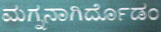
ಮಗ್ನನಾಗಿರ್ದೊಡಂ